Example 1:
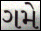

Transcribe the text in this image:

ગમે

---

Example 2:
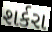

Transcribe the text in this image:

શર્કરા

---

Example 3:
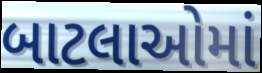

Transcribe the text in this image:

બાટલાઓમાં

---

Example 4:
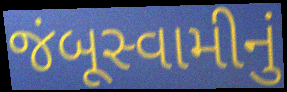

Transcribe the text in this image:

જંબૂસ્વામીનું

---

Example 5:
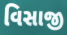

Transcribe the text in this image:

વિસાજી